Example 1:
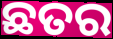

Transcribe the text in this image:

ଛତର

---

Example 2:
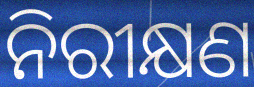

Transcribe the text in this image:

ନିରୀକ୍ଷଣ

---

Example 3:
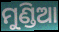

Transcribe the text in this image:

ମୁଣ୍ଡିଆ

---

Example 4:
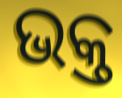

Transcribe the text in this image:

ଭକ୍ତ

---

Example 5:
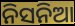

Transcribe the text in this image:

ନିସନିଆ